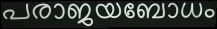
പരാജയബോധം